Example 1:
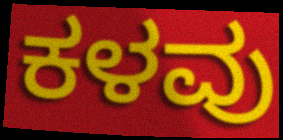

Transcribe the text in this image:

ಕಳವು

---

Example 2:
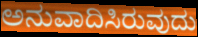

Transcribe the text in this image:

ಅನುವಾದಿಸಿರುವುದು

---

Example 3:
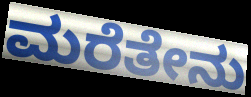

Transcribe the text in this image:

ಮರೆತೇನು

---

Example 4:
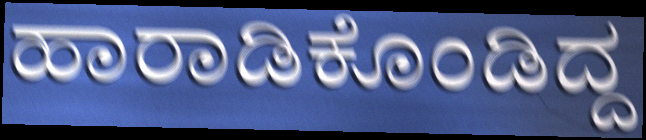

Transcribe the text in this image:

ಹಾರಾಡಿಕೊಂಡಿದ್ದ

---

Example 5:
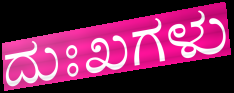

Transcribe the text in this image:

ದುಃಖಗಳು